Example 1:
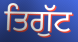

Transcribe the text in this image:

ਤਿਗੁੱਟ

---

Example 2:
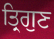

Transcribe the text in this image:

ਤ੍ਰਿਗੁਣ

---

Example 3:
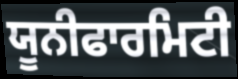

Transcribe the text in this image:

ਯੂਨੀਫਾਰਮਿਟੀ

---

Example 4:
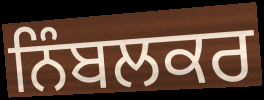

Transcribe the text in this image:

ਨਿੰਬਲਕਰ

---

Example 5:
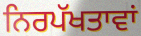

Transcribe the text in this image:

ਨਿਰਪੱਖਤਾਵਾਂ